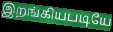
இறங்கியபடியே